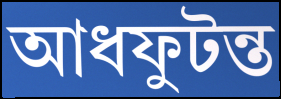
আধফুটন্ত